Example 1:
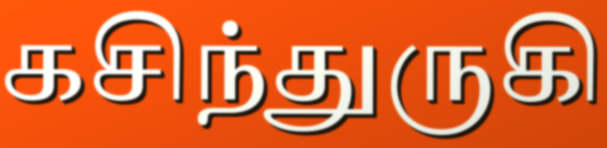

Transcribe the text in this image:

கசிந்துருகி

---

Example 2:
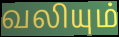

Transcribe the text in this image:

வலியும்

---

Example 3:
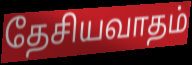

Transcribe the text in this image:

தேசியவாதம்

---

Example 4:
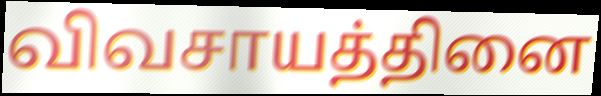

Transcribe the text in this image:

விவசாயத்தினை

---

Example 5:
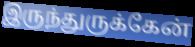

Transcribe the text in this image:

இருந்துருக்கேன்